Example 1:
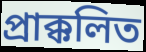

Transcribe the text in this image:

প্রাক্কলিত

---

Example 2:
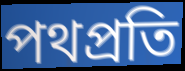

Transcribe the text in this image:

পথপ্রতি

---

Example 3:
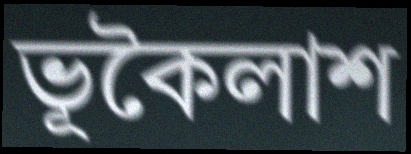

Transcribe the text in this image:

ভূকৈলাশ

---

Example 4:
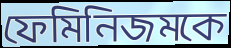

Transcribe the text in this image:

ফেমিনিজমকে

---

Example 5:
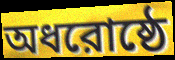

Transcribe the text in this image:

অধরোষ্ঠে